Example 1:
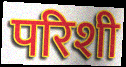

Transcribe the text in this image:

परिशी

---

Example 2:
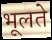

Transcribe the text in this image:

भूलते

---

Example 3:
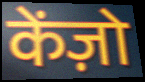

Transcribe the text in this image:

केंज़ो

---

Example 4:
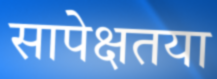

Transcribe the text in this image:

सापेक्षतया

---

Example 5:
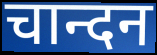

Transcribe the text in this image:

चान्दन